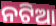
ନଟିଆ